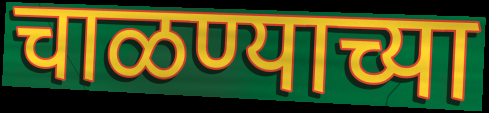
चाळण्याच्या